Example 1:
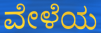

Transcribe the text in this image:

ವೇಳೆಯ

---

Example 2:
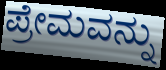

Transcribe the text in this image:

ಪ್ರೇಮವನ್ನು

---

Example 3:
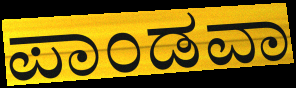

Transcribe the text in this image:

ಪಾಂಡವಾ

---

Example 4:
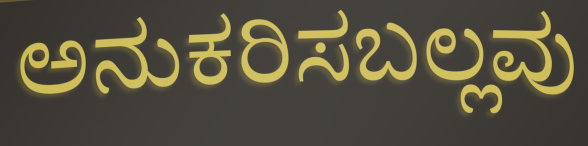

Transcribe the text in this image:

ಅನುಕರಿಸಬಲ್ಲವು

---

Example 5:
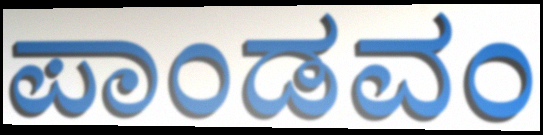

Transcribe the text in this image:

ಪಾಂಡವಂ